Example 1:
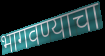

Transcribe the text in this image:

भागवण्याचा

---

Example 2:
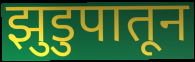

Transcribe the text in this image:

झुडुपातून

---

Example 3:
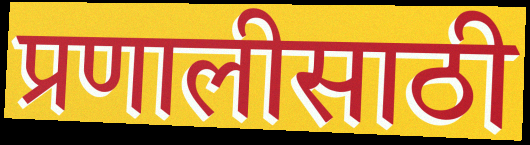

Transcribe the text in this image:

प्रणालीसाठी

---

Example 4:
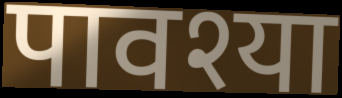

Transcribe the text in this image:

पावश्या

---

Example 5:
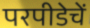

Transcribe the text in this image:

परपीडेचें